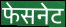
फेसनेट